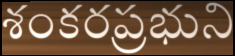
శంకరప్రభుని